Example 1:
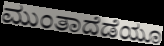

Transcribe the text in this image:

ಮುಂತಾದೆಡೆಯೂ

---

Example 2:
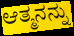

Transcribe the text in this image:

ಆತ್ಮನನ್ನು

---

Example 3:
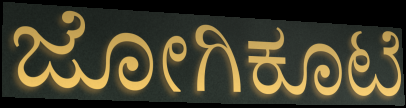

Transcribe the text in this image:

ಜೋಗಿಕೂಟೆ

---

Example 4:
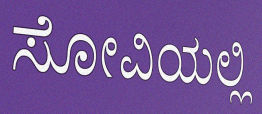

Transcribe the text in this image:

ಸೋವಿಯಲ್ಲಿ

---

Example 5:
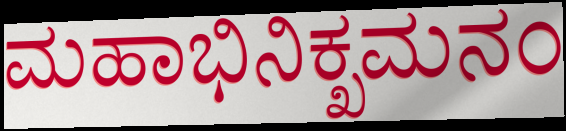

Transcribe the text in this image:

ಮಹಾಭಿನಿಕ್ಖಮನಂ